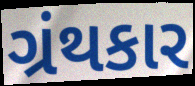
ગ્રંથકાર